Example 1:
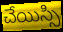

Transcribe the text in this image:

చేయిస్సి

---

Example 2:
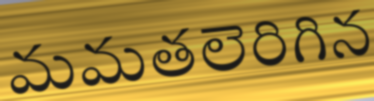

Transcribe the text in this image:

మమతలెరిగిన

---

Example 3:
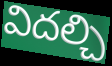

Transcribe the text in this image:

విదల్చి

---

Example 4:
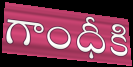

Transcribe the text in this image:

గాంధీకి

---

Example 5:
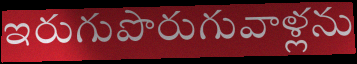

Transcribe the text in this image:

ఇరుగుపొరుగువాళ్లను